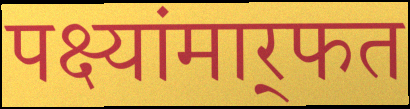
पक्ष्यांमार्फत